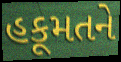
હકૂમતને